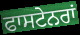
ਫਾਸਟੇਨਰਾਂ